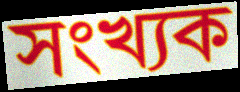
সংখ্যক